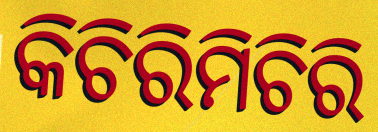
କିଚିରିମିଚିରି